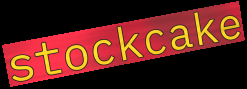
stockcake